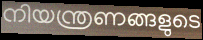
നിയന്ത്രണങ്ങളുടെ